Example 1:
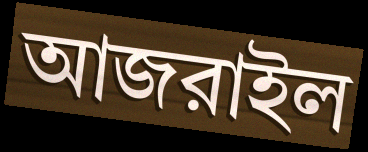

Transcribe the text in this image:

আজরাইল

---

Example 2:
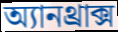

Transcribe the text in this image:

অ্যানথ্রাক্স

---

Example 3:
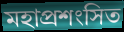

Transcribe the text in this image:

মহাপ্রশংসিত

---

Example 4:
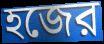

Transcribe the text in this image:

হজের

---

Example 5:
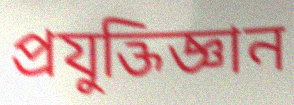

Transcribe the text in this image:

প্রযুক্তিজ্ঞান